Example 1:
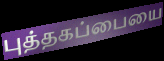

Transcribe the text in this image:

புத்தகப்பையை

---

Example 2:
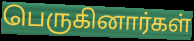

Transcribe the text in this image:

பெருகினார்கள்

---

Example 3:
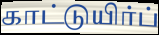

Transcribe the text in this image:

காட்டுயிர்ப்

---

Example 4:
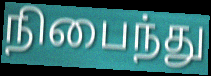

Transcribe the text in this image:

நிபைந்து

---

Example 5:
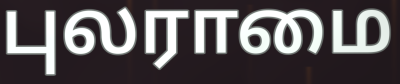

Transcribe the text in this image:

புலராமை